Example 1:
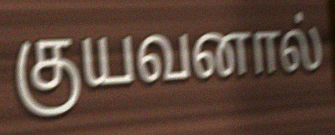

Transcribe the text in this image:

குயவனால்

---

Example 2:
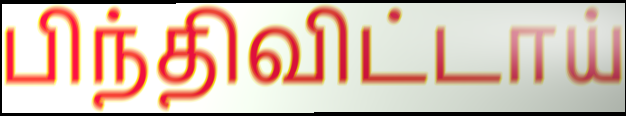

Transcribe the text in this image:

பிந்திவிட்டாய்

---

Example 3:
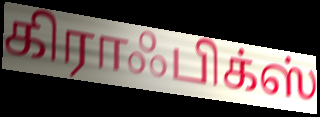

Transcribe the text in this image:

கிராஃபிக்ஸ்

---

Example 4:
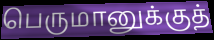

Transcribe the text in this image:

பெருமானுக்குத்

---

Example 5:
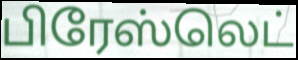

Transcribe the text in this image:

பிரேஸ்லெட்